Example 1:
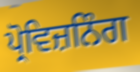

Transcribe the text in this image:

ਪ੍ਰੋਵਿਜ਼ਨਿੰਗ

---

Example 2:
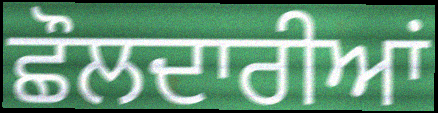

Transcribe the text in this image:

ਛੌਲਦਾਰੀਆਂ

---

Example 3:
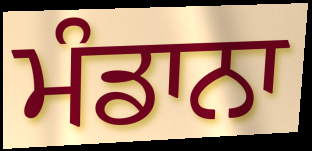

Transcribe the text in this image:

ਮੰਡਾਨਾ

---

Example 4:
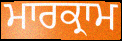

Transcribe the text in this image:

ਮਾਰਕ੍ਰਾਮ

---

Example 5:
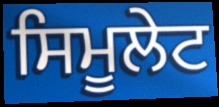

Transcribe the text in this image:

ਸਿਮੂਲੇਟ